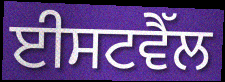
ਈਸਟਵੈੱਲ